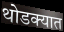
थोडक्यात